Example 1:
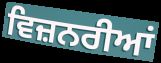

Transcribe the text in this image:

ਵਿਜ਼ਨਰੀਆਂ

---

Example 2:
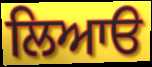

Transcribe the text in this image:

ਲਿਆੳ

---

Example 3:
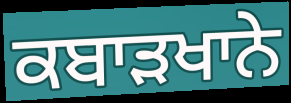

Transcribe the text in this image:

ਕਬਾੜਖਾਨੇ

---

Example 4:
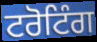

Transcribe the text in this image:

ਟਰੋਟਿੰਗ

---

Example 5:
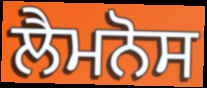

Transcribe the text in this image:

ਲੈਮਨੋਸ